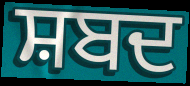
ਸ਼ਬਦ